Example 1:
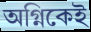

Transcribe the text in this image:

অগ্নিকেই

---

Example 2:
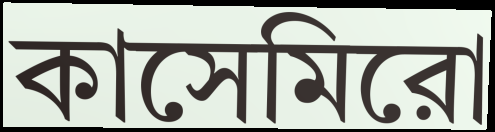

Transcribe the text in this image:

কাসেমিরো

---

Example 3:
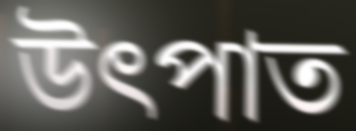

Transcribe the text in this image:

উৎপাত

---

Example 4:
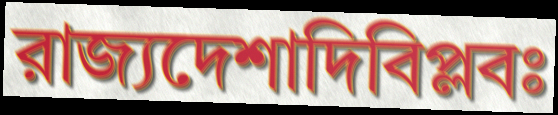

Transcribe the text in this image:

রাজ্যদেশাদিবিপ্লবঃ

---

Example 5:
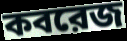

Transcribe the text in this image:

কবরেজ